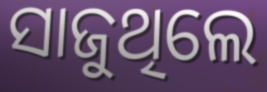
ସାଜୁଥିଲେ